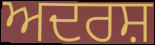
ਅਦਰਸ਼